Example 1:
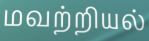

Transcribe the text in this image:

மவற்றியல்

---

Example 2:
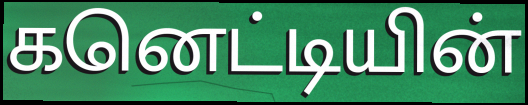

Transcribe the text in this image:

கனெட்டியின்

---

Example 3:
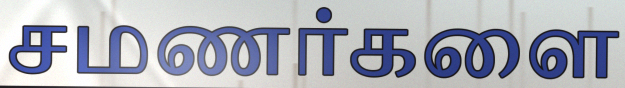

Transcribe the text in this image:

சமணர்களை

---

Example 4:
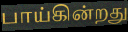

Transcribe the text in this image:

பாய்கின்றது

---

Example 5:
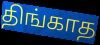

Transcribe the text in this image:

திங்காத